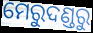
ମେରୁଦଣ୍ଡରୁ